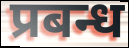
प्रबन्ध